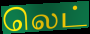
லெட்